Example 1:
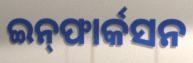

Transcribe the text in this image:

ଇନ୍‌ଫାର୍କସନ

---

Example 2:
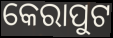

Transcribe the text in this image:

କେରାପୁଟ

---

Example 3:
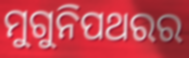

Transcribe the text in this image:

ମୁଗୁନିପଥରର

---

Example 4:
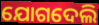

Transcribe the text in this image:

ଯୋଗଦେଲି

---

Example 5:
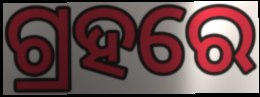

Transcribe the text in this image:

ଗ୍ରହରେ